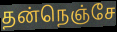
தன்நெஞ்சே